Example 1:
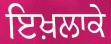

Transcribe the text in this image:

ਇਖ਼ਲਾਕੇ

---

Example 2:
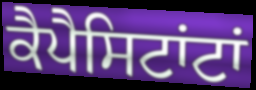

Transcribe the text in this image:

ਕੈਪੈਸਿਟਾਂਟਾਂ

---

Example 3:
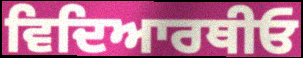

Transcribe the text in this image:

ਵਿਦਿਆਰਥੀਓ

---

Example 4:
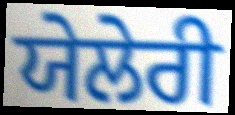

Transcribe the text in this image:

ਯੇਲੇਰੀ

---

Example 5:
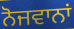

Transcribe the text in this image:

ਨੋਜਵਾਨਾਂ